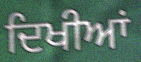
ਦਿਖੀਆਂ